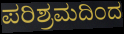
ಪರಿಶ್ರಮದಿಂದ